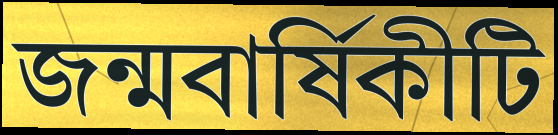
জন্মবার্ষিকীটি